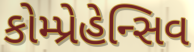
કોમ્પ્રેહેન્સિવ